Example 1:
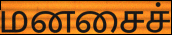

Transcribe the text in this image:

மனசைச்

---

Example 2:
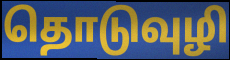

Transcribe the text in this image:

தொடுவுழி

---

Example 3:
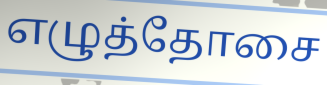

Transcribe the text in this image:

எழுத்தோசை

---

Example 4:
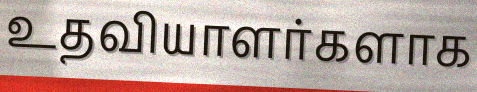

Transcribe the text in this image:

உதவியாளர்களாக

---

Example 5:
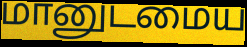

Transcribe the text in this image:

மானுடமைய